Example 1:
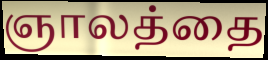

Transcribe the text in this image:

ஞாலத்தை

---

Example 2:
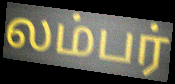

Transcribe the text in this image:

லம்பர்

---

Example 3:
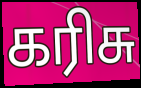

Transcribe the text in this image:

கரிசு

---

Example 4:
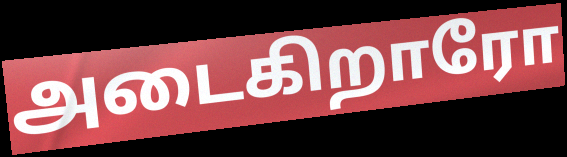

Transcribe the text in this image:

அடைகிறாரோ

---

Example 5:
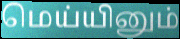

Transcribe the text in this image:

மெய்யினும்